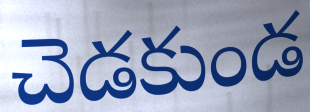
చెడకుండ